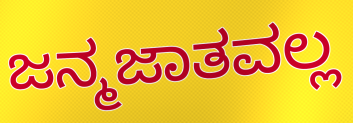
ಜನ್ಮಜಾತವಲ್ಲ